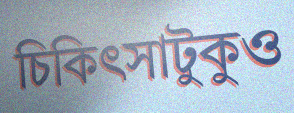
চিকিৎসাটুকুও